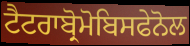
ਟੈਟਰਾਬ੍ਰੋਮੋਬਿਸਫੇਨੋਲ